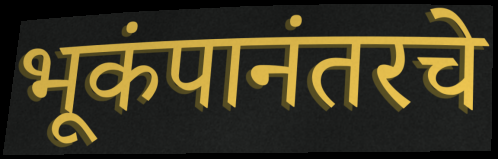
भूकंपानंतरचे